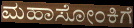
ಮಹಾಸೋಂಕಿಗೆ